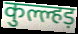
कुल्ल्हड़